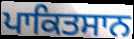
ਪਾਕਿਤਸਾਨ